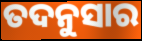
ତଦନୁସାର